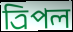
ত্রিপল